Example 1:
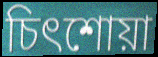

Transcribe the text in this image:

চিৎশোয়া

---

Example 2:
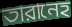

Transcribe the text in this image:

তারানেহ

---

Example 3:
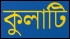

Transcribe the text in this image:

কুলাটি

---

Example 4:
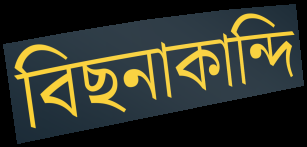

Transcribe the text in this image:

বিছনাকান্দি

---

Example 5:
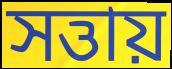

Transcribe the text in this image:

সত্তায়